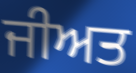
ਜੀਅਤ